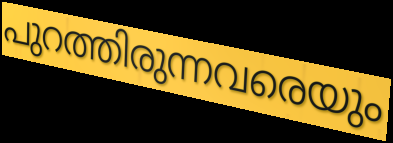
പുറത്തിരുന്നവരെയും